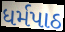
ધર્મપાઠ